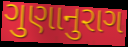
ગુણાનુરાગ